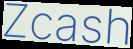
Zcash